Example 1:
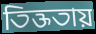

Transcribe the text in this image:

তিক্ততায়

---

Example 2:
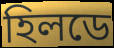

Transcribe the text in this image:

হিলডে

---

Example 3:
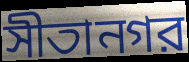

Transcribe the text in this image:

সীতানগর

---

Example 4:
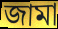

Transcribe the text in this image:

জামা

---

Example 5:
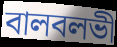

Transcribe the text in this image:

বালবলভী